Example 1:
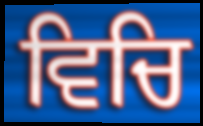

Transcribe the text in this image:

ਵਿਚਿ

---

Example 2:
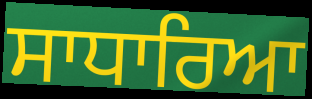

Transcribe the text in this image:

ਸਾਧਾਰਿਆ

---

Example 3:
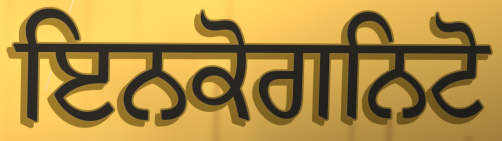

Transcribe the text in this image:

ਇਨਕੋਗਨਿਟੋ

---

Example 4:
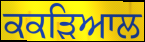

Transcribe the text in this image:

ਕਕੜਿਆਲ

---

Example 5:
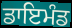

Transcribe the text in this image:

ਡਾਇਮੰਡ